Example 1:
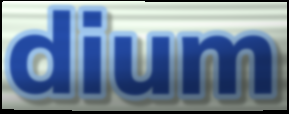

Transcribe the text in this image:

dium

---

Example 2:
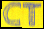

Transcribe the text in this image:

CT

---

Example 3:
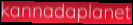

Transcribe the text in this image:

kannadaplanet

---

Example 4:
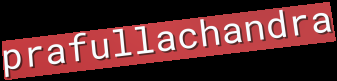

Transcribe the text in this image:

prafullachandra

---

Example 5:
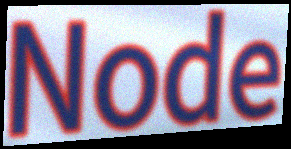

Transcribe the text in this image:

Node